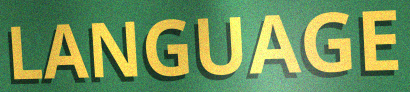
LANGUAGE